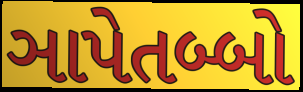
ઞાપેતબ્બો